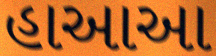
હાઆઆ